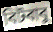
বিটবাবু